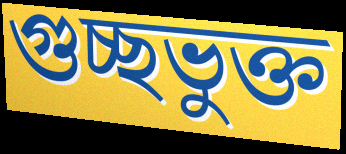
গুচ্ছভুক্ত